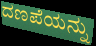
ದಣಪೆಯನ್ನು